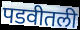
पडवीतली